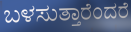
ಬಳಸುತ್ತಾರೆಂದರೆ